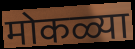
मोकळ्या